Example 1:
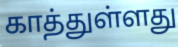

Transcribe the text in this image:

காத்துள்ளது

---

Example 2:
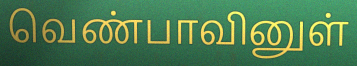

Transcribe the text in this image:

வெண்பாவினுள்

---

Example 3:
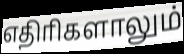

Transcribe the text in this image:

எதிரிகளாலும்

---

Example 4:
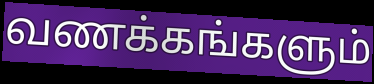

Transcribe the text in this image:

வணக்கங்களும்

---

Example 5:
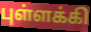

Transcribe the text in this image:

புள்ளக்கி